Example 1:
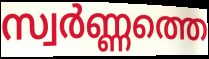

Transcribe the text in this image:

സ്വർണ്ണത്തെ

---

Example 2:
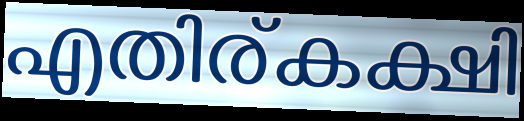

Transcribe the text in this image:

എതിര്കക്ഷി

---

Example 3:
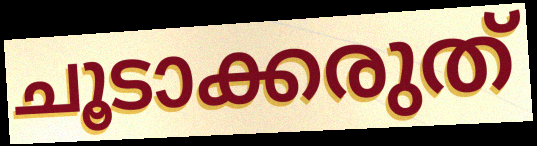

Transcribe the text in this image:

ചൂടാക്കരുത്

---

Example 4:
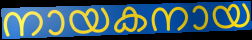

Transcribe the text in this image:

നായകനായ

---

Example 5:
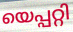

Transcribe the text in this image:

യെപ്പറ്റി